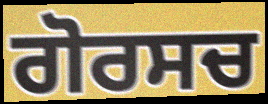
ਗੋਰਸਚ